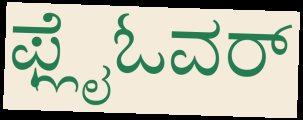
ಫ್ಲೈಓವರ್